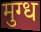
मुग्ध